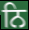
ਨਿ